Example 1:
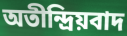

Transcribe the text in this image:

অতীন্দ্রিয়বাদ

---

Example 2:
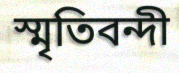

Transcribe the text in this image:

স্মৃতিবন্দী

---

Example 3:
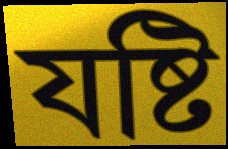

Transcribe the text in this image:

যষ্টি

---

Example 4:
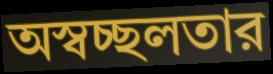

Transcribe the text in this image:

অস্বচ্ছলতার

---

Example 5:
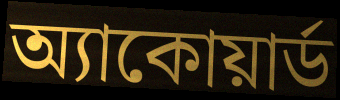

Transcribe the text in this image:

অ্যাকোয়ার্ড